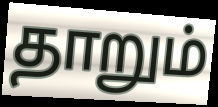
தாறும்